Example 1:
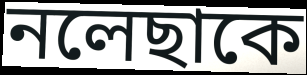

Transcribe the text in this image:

নলেছাকে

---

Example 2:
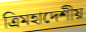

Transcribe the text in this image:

ত্রিমহাদেশীয়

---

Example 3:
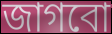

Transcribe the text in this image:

জাগবো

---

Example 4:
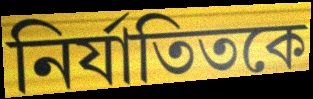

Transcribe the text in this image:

নির্যাতিতকে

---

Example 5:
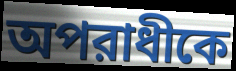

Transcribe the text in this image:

অপরাধীকে